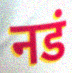
नडं